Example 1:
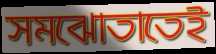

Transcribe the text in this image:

সমঝোতাতেই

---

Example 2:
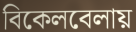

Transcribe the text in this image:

বিকেলবেলায়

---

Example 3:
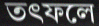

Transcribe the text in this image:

তৎফলে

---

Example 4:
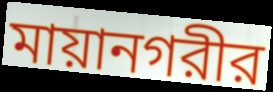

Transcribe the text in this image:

মায়ানগরীর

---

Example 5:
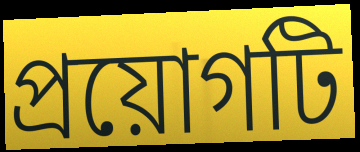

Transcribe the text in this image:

প্রয়োগটি